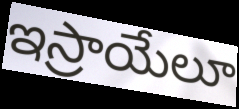
ఇస్రాయేలూ